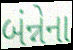
બંન્નેના